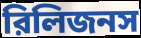
রিলিজনস